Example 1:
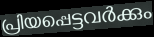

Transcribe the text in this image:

പ്രിയപ്പെട്ടവർക്കും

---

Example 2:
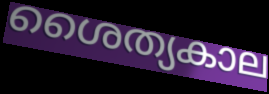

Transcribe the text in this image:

ശൈത്യകാല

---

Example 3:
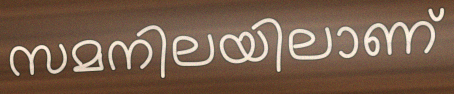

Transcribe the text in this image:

സമനിലയിലാണ്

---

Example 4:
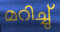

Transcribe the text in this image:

മറിച്ചു്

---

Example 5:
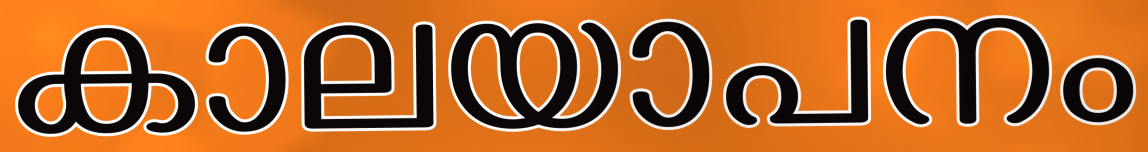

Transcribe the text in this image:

കാലയാപനം